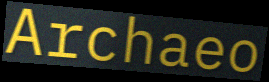
Archaeo